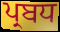
ਪ੍ਰਬਧ